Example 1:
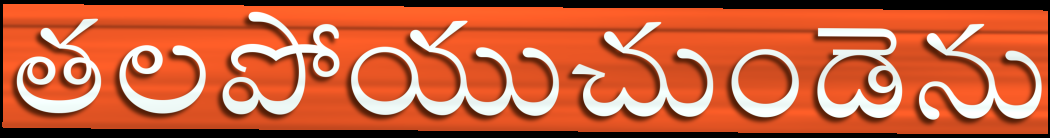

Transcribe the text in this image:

తలపోయుచుండెను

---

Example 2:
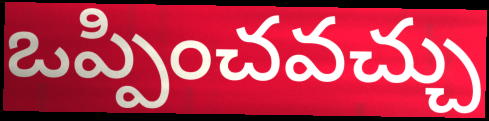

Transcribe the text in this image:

ఒప్పించవచ్చు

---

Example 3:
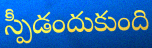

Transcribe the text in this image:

స్పీడందుకుంది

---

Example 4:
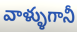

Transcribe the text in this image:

వాళ్ళుగానీ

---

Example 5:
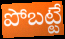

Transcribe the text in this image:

పోబట్టే